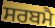
ਸਰਬਮੈ